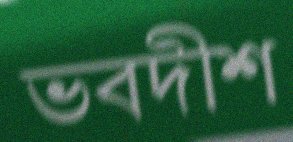
ভবদীশ